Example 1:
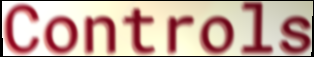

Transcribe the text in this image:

Controls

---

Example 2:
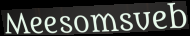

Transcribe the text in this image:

Meesomsueb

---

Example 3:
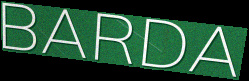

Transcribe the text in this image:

BARDA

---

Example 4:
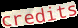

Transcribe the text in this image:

credits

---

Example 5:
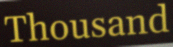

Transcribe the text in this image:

Thousand